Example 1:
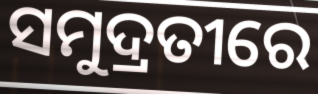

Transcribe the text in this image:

ସମୁଦ୍ରତୀରେ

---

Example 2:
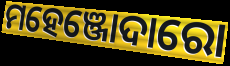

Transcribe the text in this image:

ମହେଞ୍ଜୋଦାରୋ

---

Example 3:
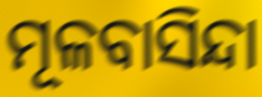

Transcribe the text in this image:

ମୂଳବାସିନ୍ଦା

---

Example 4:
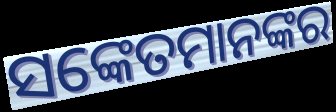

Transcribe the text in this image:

ସଙ୍କେତମାନଙ୍କର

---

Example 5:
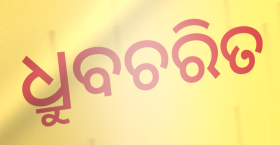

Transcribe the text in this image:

ଧ୍ରୁବଚରିତ